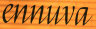
ennuva